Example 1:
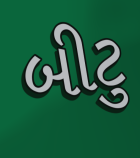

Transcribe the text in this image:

બીટુ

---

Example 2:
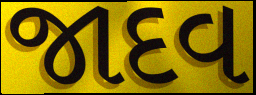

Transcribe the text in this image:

જાદવ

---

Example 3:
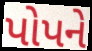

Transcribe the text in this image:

પોપને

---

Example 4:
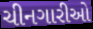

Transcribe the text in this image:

ચીનગારીઓ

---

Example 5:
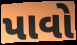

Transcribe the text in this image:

પાવો